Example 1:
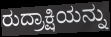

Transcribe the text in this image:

ರುದ್ರಾಕ್ಷಿಯನ್ನು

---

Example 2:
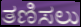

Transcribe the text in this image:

ತಣಿಸಲು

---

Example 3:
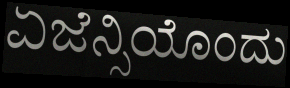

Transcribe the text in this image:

ಏಜೆನ್ಸಿಯೊಂದು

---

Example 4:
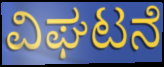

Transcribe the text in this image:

ವಿಘಟನೆ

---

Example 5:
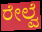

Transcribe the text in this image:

ರೇಲ್ವೆ